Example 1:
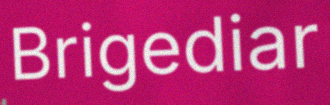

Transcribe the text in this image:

Brigediar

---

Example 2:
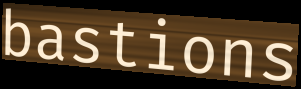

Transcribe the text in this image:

bastions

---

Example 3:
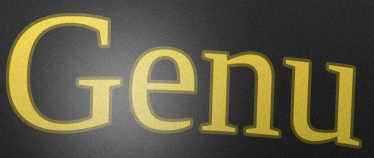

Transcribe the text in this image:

Genu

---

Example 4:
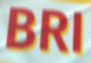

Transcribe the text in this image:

BRI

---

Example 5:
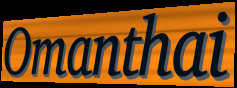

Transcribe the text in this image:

Omanthai